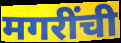
मगरींची